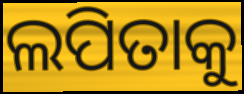
ଲପିତାକୁ